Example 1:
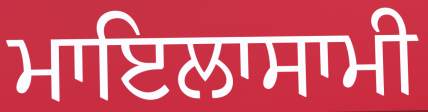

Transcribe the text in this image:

ਮਾਇਲਾਸਾਮੀ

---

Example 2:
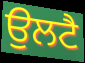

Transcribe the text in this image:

ਉਲਟੈ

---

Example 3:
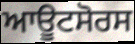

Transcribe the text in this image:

ਆਊਟਸੋਰਸ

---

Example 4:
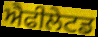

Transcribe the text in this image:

ਐਫੀਲੇਟਡ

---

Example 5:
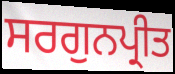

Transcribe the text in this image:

ਸਰਗੁਨਪ੍ਰੀਤ